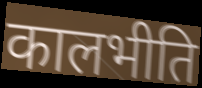
कालभीति